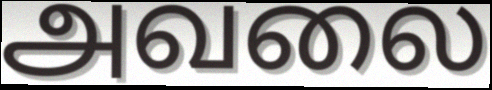
அவலை